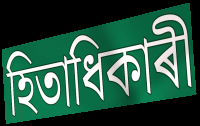
হিতাধিকাৰী